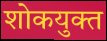
शोकयुक्त